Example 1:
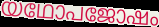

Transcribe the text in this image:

യഥോപജോഷം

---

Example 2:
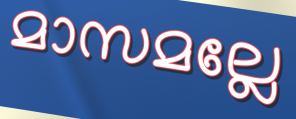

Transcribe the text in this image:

മാസമല്ലേ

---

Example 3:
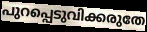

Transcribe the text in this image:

പുറപ്പെടുവിക്കരുതേ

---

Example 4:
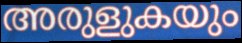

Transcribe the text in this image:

അരുളുകയും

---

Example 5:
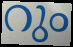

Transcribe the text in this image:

റും